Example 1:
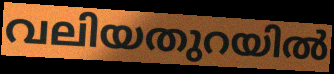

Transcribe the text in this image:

വലിയതുറയിൽ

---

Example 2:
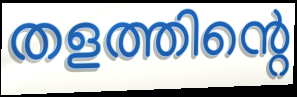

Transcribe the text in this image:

തളത്തിന്റെ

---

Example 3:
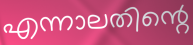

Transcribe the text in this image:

എന്നാലതിന്റെ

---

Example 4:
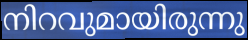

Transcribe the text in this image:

നിറവുമായിരുന്നു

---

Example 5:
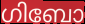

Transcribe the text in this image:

ഗിബോ